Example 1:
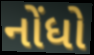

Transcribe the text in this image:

નોંધો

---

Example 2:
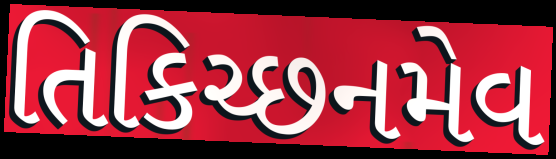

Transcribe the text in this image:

તિકિચ્છનમેવ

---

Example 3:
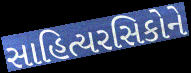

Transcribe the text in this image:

સાહિત્યરસિકોને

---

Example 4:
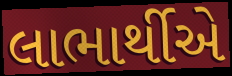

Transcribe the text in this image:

લાભાર્થીએ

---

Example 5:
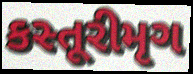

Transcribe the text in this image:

કસ્તૂરીમૃગ